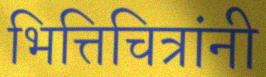
भित्तिचित्रांनी